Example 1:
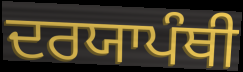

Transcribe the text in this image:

ਦਰਯਾਪੰਥੀ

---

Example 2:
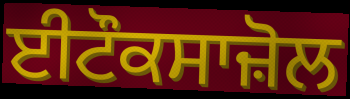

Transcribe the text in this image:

ਈਟੌਕਸਾਜ਼ੋਲ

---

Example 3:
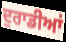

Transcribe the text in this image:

ਦੁਰਾਡੀਆਂ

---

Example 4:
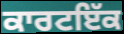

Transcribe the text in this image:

ਕਾਰਟਇੱਕ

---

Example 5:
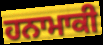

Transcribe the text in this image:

ਹਨਾਮਾਕੀ